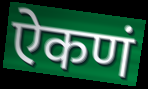
ऐकणं